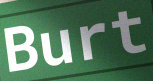
Burt